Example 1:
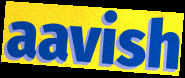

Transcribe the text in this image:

aavish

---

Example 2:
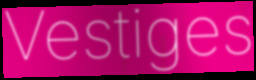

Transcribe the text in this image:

Vestiges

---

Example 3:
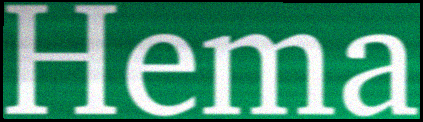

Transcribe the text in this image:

Hema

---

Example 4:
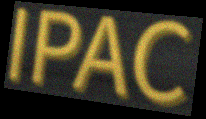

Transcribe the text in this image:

IPAC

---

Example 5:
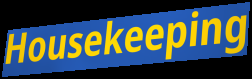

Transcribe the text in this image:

Housekeeping